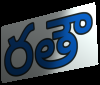
రతౌ